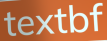
textbf